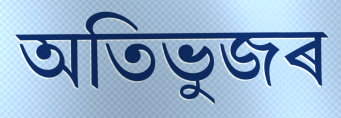
অতিভুজৰ